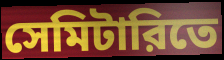
সেমিটারিতে